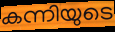
കന്നിയുടെ